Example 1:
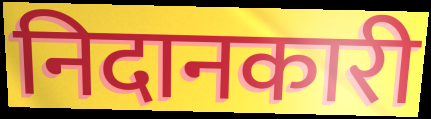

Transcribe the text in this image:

निदानकारी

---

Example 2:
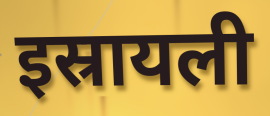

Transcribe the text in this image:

इस्रायली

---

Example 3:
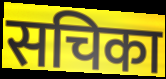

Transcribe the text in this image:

सचिका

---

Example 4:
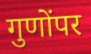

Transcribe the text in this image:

गुणोंपर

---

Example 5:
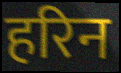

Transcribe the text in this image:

हरिन